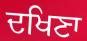
ਦਖਿਣਾ